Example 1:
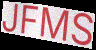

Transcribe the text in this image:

JFMS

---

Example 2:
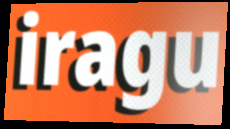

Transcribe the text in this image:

iragu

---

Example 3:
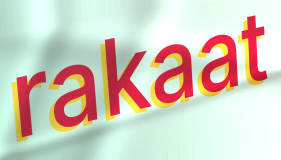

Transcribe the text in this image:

rakaat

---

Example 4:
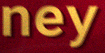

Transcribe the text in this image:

ney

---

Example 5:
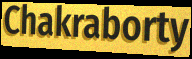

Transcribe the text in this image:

Chakraborty